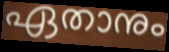
ഏതാനും